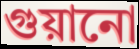
গুয়ানো